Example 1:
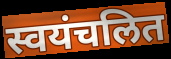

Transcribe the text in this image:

स्वयंचलित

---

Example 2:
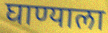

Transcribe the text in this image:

घाण्याला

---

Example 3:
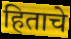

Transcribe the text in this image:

हिताचे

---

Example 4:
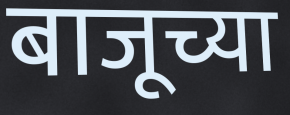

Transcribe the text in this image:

बाजूच्या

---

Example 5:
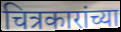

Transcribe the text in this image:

चित्रकारांच्या